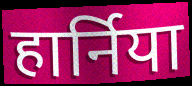
हार्निया